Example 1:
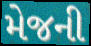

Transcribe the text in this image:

મેજની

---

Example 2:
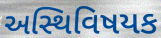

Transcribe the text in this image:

અસ્થિવિષયક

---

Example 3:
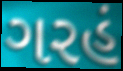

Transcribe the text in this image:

ગરહં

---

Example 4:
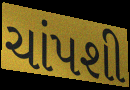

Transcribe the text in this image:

ચાંપશી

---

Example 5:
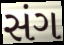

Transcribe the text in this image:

સંગ